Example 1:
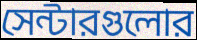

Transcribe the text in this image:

সেন্টারগুলোর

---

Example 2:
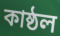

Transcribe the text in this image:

কাষ্ঠল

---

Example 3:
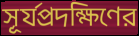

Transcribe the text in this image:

সূর্যপ্রদক্ষিণের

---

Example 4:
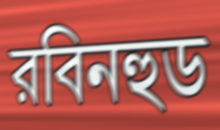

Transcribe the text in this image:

রবিনহুড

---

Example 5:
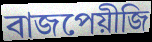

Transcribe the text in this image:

বাজপেয়ীজি